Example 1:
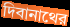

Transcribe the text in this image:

দিবানাথের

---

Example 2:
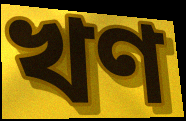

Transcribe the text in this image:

খণ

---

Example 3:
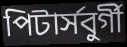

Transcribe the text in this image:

পিটার্সবুর্গী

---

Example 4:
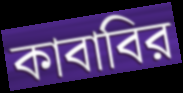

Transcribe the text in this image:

কাবাবির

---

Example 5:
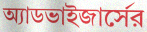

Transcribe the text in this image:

অ্যাডভাইজার্সের